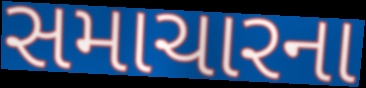
સમાચારના